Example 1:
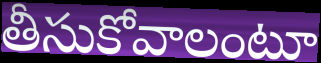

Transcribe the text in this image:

తీసుకోవాలంటూ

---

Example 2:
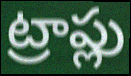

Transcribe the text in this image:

ట్రాప్లు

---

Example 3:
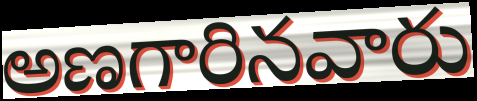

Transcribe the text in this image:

అణగారినవారు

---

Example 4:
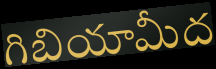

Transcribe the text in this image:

గిబియామీద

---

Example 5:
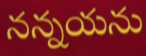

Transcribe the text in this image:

నన్నయను